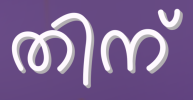
തിന്